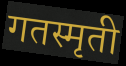
गतस्मृती